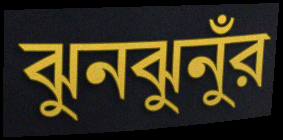
ঝুনঝুনুঁর